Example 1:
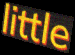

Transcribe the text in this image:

little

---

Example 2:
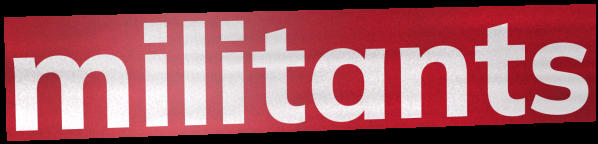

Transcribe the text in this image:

militants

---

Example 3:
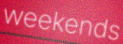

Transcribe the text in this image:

weekends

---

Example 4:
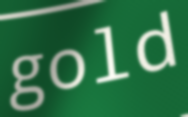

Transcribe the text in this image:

gold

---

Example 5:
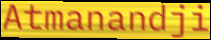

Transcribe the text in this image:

Atmanandji